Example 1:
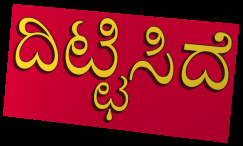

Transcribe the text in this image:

ದಿಟ್ಟಿಸಿದೆ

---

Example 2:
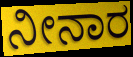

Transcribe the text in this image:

ನೀನಾರ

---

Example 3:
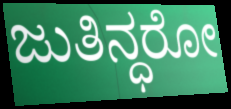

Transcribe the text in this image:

ಜುತಿನ್ಧರೋ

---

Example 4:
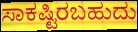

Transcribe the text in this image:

ಸಾಕಷ್ಟಿರಬಹುದು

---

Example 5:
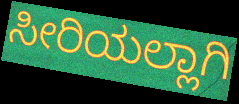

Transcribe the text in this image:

ಸೀರಿಯಲ್ಲಾಗಿ